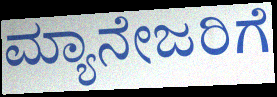
ಮ್ಯಾನೇಜರಿಗೆ